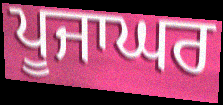
ਪੂਜਾਘਰ